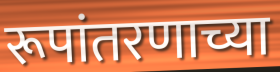
रूपांतरणाच्या